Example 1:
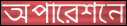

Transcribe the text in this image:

অপারেশনে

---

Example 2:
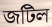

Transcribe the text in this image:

জটিল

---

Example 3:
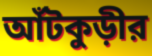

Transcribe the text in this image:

আঁটকুড়ীর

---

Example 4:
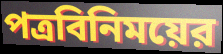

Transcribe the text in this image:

পত্রবিনিময়ের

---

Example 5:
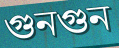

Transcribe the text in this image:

গুনগুন